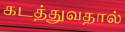
கடத்துவதால்